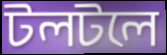
টলটলে